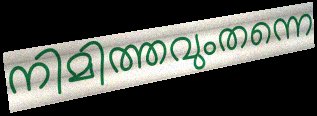
നിമിത്തവുംതന്നെ